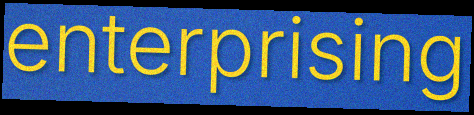
enterprising